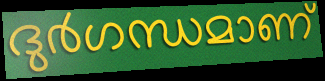
ദുർഗന്ധമാണ്